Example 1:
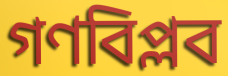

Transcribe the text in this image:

গণবিপ্লব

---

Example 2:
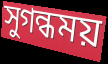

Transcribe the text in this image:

সুগন্ধময়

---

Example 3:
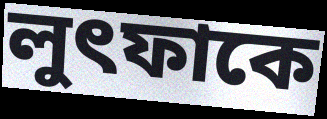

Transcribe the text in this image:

লুৎফাকে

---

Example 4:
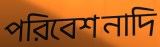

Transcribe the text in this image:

পরিবেশনাদি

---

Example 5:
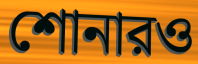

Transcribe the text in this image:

শোনারও